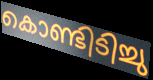
കൊണ്ടിടിച്ചു